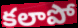
కలాపో